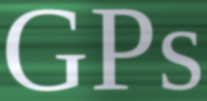
GPs